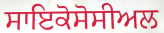
ਸਾਇਕੋਸੋਸੀਅਲ